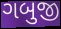
ગબુજી